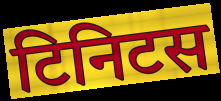
टिनिटस